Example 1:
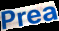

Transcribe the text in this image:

Prea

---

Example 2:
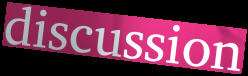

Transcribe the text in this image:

discussion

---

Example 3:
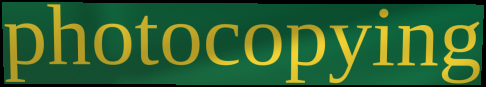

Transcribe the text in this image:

photocopying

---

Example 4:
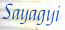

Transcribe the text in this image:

Sayagyi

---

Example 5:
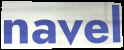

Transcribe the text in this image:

navel